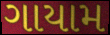
ગાયામ